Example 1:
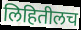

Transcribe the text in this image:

लिहितीलच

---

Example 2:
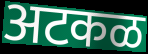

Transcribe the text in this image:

अटकळ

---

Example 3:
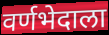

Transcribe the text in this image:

वर्णभेदाला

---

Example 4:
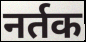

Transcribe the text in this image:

नर्तक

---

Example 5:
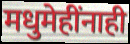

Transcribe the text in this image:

मधुमेहींनाही